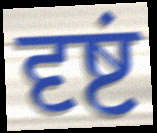
दृष्टं